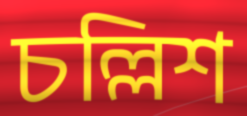
চল্লিশ